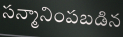
సన్మానింపబడిన